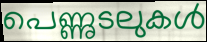
പെണ്ണുടലുകൾ